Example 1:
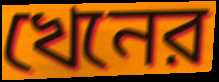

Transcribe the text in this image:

খেনের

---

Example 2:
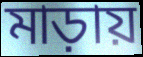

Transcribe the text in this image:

মাড়ায়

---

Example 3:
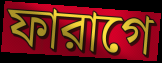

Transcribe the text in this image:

ফারাগে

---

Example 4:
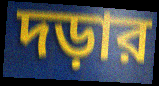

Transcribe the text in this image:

দড়ার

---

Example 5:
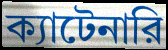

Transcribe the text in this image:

ক্যাটেনারি